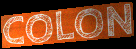
COLON